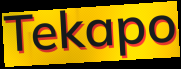
Tekapo